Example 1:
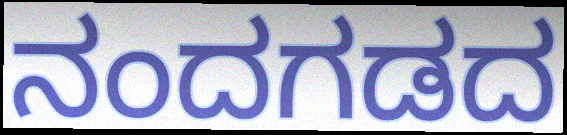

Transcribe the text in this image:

ನಂದಗಡದ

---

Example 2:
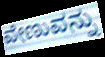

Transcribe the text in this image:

ವೇಣುವನ್ನು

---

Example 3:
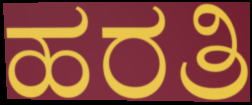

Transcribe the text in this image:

ಹರತಿ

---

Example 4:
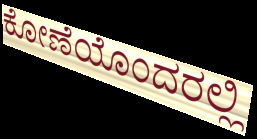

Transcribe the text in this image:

ಕೋಣೆಯೊಂದರಲ್ಲಿ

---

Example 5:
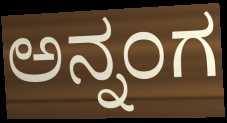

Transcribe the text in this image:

ಅನ್ನಂಗ